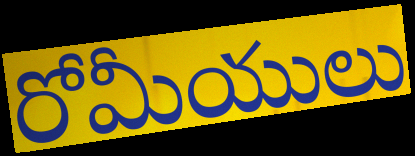
రోమీయులు